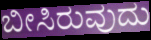
ಬೀಸಿರುವುದು